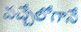
వచ్చేలోగానే